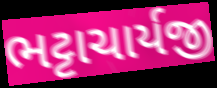
ભટ્ટાચાર્યજી